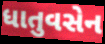
ધાતુવસેન